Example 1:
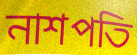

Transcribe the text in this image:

নাশপতি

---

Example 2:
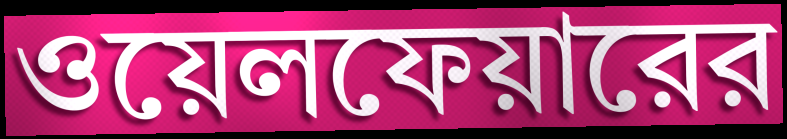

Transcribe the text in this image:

ওয়েলফেয়ারের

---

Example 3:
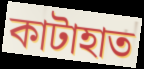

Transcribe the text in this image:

কাটাহাত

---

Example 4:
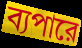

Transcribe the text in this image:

ব্যপারে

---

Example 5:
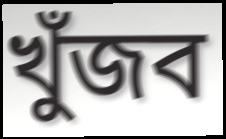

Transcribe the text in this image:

খুঁজব